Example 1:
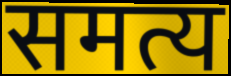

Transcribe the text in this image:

समत्य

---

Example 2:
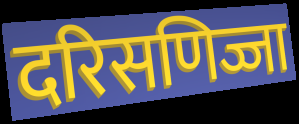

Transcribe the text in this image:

दरिसणिज्जा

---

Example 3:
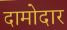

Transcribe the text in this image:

दामोदार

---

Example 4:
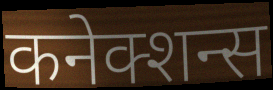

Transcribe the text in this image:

कनेक्शन्स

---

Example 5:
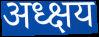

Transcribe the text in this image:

अध्क्षय